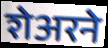
शेअरने